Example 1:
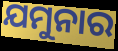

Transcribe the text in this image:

ଯମୁନାର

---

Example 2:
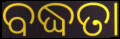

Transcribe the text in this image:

ବଦ୍ଧତା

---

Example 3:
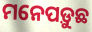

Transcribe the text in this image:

ମନେପଡ଼ୁଛ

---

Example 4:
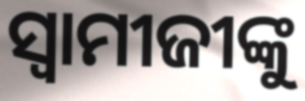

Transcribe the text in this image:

ସ୍ଵାମୀଜୀଙ୍କୁ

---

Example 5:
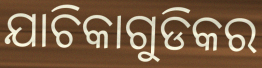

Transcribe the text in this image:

ଯାଚିକାଗୁଡିକର